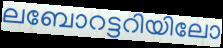
ലബോറട്ടറിയിലോ